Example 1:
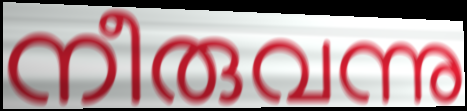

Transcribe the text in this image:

നീരുവന്നു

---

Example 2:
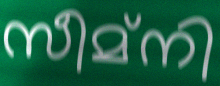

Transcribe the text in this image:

സീമ്നി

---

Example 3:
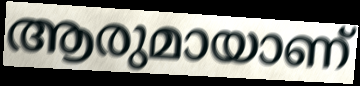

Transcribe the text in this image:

ആരുമായാണ്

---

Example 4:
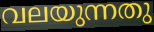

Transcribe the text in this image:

വലയുന്നതു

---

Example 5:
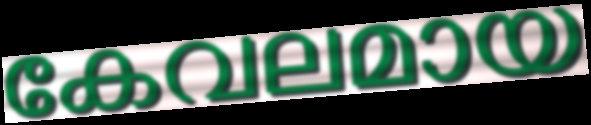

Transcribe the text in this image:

കേവലമായ